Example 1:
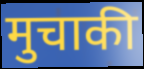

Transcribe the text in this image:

मुचाकी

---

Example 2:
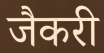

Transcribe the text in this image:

जैकरी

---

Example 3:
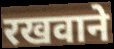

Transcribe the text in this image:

रखवाने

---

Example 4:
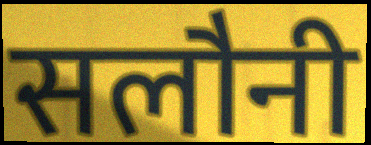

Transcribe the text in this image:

सलौनी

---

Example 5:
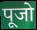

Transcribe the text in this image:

पूजो